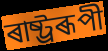
ৰাষ্ট্ৰৰূপী